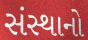
સંસ્થાનો